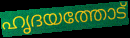
ഹൃദയത്തോട്